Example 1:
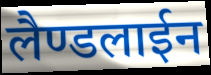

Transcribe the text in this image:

लैण्डलाईन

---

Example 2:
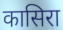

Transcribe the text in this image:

कासिरा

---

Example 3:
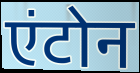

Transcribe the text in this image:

एंटोन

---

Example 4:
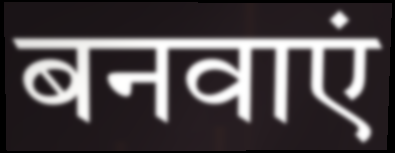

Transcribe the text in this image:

बनवाएं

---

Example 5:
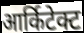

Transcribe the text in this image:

आर्किटेक्ट